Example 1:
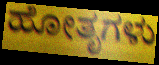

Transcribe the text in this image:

ಹೋತೃಗಳು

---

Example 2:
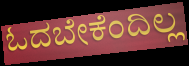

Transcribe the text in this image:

ಓದಬೇಕೆಂದಿಲ್ಲ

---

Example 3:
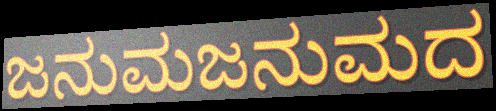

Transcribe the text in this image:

ಜನುಮಜನುಮದ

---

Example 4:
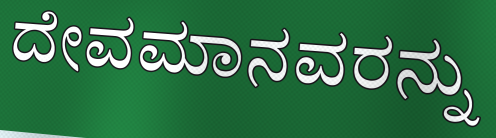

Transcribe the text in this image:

ದೇವಮಾನವರನ್ನು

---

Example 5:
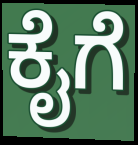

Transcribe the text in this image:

ಕೈಗೆ